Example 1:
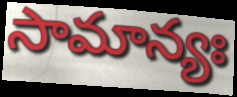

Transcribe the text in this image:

సామాన్యః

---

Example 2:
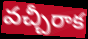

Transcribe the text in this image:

వచ్చీరాక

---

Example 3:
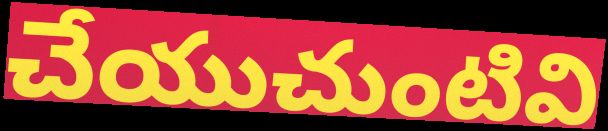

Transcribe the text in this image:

చేయుచుంటివి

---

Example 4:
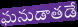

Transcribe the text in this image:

ఘనుడాతడే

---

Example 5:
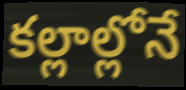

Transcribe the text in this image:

కల్లాల్లోనే